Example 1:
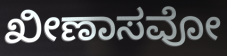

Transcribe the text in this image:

ಖೀಣಾಸವೋ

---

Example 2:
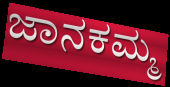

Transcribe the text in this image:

ಜಾನಕಮ್ಮ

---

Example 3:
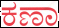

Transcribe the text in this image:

ಕಣಾ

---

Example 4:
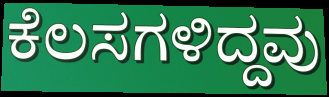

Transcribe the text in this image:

ಕೆಲಸಗಳಿದ್ದವು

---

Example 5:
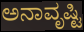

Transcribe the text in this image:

ಅನಾವೃಷ್ಟಿ